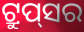
ଟ୍ରୁପ୍‌ସର